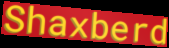
Shaxberd